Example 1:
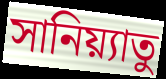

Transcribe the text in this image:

সানিয়্যাতু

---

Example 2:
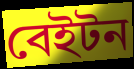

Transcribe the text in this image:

বেইটন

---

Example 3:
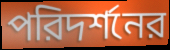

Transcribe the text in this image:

পরিদর্শনের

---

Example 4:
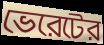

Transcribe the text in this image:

ভেরেটের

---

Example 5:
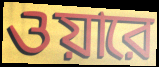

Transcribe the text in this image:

ওয়ারে